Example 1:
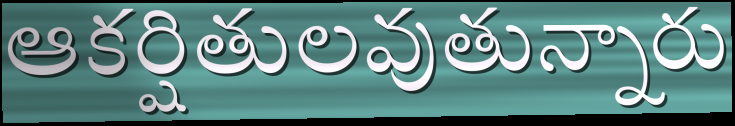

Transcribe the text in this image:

ఆకర్షితులవుతున్నారు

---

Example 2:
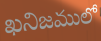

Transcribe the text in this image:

ఖనిజములో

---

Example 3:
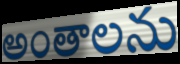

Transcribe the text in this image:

అంతాలను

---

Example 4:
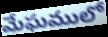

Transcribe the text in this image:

మేఘములో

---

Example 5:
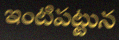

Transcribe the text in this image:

ఇంటిపట్టున